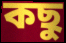
কছু